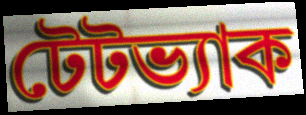
টেটভ্যাক